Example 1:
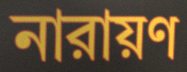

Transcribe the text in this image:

নারায়ণ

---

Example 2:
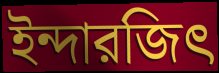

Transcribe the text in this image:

ইন্দারজিৎ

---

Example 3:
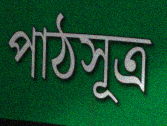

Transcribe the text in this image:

পাঠসূত্র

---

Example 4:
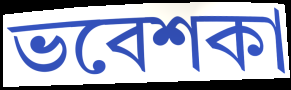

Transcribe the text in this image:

ভবেশকা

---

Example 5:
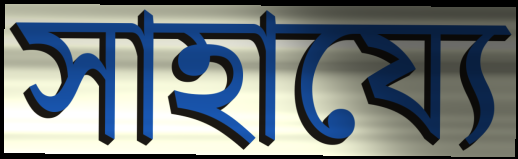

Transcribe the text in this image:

সাহায্যে